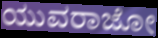
ಯುವರಾಜೋ